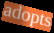
adopts